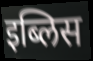
इब्लिस